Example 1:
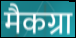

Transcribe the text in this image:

मैकग्रा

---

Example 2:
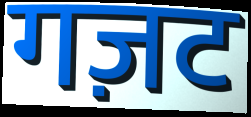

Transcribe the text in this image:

गज़ट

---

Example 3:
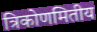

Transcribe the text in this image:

त्रिकोणमितीय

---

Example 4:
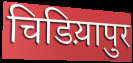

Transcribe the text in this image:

चिडिय़ापुर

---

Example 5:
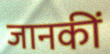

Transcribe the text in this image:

जानकीं